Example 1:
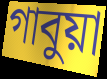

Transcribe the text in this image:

গাবুয়া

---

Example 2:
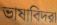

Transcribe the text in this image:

ভাষাবিদরা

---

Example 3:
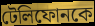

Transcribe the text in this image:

টেলিফোনকে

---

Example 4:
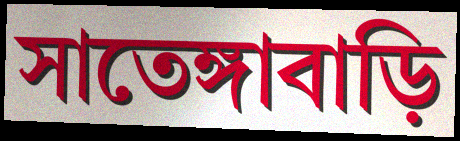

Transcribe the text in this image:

সাতেঙ্গাবাড়ি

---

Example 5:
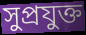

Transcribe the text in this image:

সুপ্রযুক্ত